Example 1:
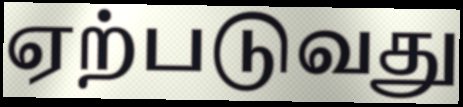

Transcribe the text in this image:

ஏற்படுவது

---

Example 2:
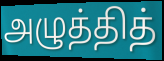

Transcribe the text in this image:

அழுத்தித்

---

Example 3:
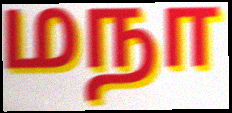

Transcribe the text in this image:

மநா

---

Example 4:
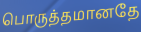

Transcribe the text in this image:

பொருத்தமானதே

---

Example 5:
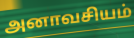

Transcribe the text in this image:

அனாவசியம்